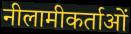
नीलामीकर्ताओं